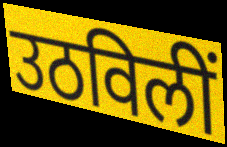
उठविलीं